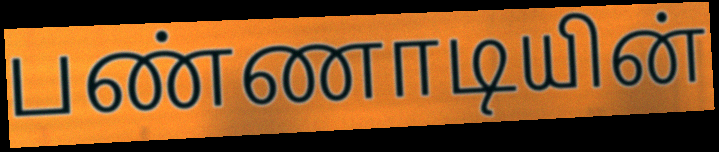
பண்ணாடியின்